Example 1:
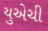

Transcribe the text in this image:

યુએચી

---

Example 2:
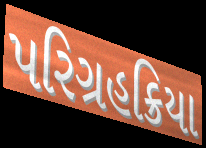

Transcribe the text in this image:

પરિગ્રહક્રિયા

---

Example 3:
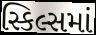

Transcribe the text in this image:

સ્કિલ્સમાં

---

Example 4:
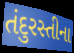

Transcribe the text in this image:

તંદુરસ્તીના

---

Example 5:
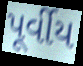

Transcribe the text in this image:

પૂર્વીય